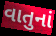
વાતુનાં